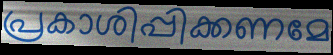
പ്രകാശിപ്പിക്കണമേ